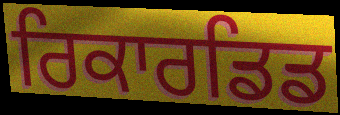
ਰਿਕਾਰਡਿਡ